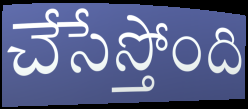
చేసేస్తోంది